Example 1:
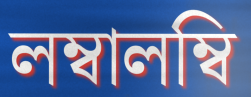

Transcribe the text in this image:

লম্বালম্বি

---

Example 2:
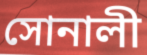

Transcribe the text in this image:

সোনালী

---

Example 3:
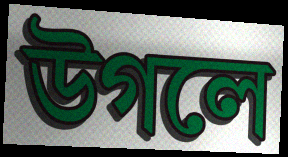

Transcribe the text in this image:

উগলে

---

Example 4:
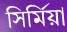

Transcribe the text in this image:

সির্মিয়া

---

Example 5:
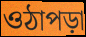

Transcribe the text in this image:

ওঠাপড়া